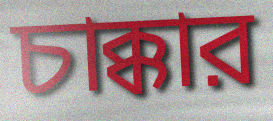
চাক্কার